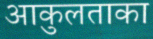
आकुलताका